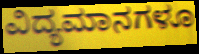
ವಿದ್ಯಮಾನಗಳೂ